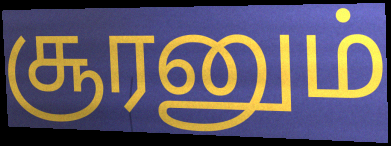
சூரனும்